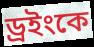
ড্রইংকে